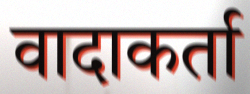
वादाकर्ता